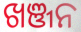
ଖଞ୍ଜନ